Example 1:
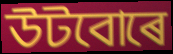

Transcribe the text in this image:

উটবোৰে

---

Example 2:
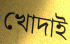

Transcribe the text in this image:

খোদাই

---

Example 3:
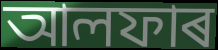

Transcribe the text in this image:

আলফাৰ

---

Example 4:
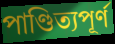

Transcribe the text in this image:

পাণ্ডিত্যপূৰ্ণ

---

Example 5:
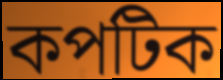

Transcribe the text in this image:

কপটিক